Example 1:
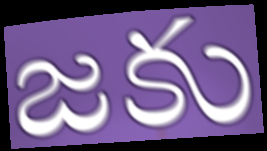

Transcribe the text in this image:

జకు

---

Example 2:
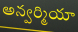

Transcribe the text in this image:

అన్వర్మియా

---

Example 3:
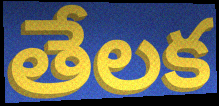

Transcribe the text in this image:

తేలక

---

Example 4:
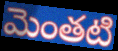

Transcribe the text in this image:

మెంతటి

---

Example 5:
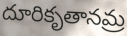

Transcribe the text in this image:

దూరికృతానమ్ర